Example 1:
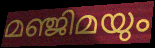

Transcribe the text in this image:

മഞ്ജിമയും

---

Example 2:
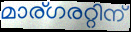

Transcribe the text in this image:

മാര്ഗരറ്റിന്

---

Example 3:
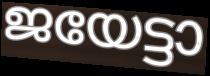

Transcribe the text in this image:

ജയേട്ടാ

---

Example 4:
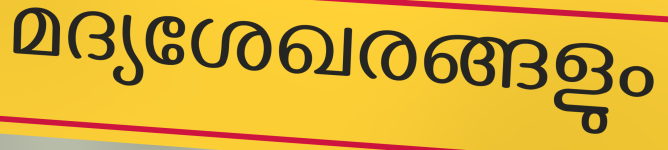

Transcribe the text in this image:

മദ്യശേഖരങ്ങളും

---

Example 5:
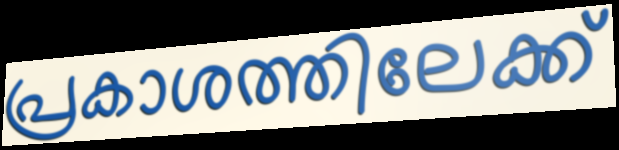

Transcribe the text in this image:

പ്രകാശത്തിലേക്ക്